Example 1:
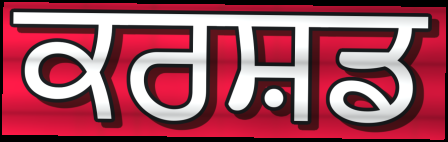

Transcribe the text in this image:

ਕਰਸ਼ਡ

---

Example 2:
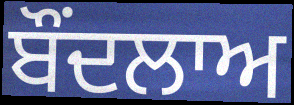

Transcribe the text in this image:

ਬੌਂਦਲਾਅ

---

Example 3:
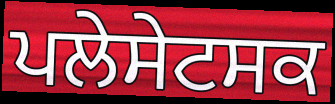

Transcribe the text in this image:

ਪਲੇਸੇਟਸਕ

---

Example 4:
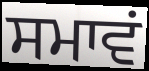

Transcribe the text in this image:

ਸਮਾਵਂ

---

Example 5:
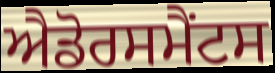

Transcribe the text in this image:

ਐਡੋਰਸਮੈਂਟਸ